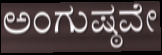
ಅಂಗುಷ್ಠವೇ